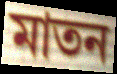
মাতন